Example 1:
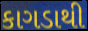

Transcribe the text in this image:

કાગડાથી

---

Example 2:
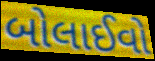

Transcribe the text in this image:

બોલાઈવો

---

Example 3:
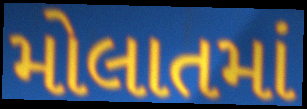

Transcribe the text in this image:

મોલાતમાં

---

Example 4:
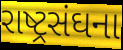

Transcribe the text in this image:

રાષ્ટ્રસંઘના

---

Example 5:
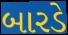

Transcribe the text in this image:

બારડે